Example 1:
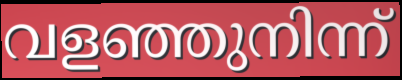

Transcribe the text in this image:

വളഞ്ഞുനിന്ന്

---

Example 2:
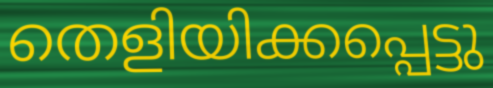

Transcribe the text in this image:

തെളിയിക്കപ്പെട്ടു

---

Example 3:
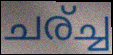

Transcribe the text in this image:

ചര്ച്ച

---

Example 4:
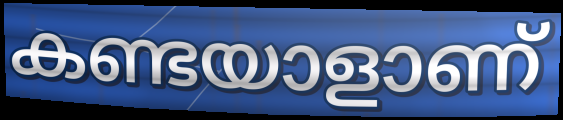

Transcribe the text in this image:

കണ്ടയാളാണ്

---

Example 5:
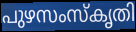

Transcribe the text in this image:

പുഴസംസ്കൃതി